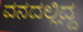
ವನದಲ್ಲಿದ್ದ